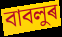
বাবলুৰ